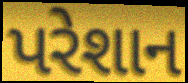
પરેશાન